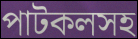
পাটকলসহ